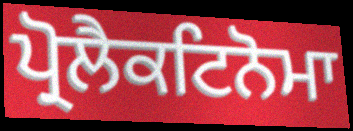
ਪ੍ਰੋਲੈਕਟਿਨੋਮਾ